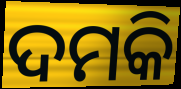
ଦମକି